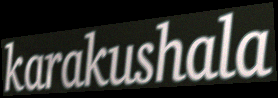
karakushala